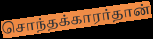
சொந்தக்காரர்தான்